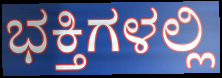
ಭಕ್ತಿಗಳಲ್ಲಿ